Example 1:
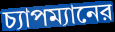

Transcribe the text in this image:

চ্যাপম্যানের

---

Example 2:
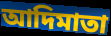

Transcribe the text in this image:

আদিমাতা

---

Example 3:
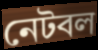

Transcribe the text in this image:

নেটবল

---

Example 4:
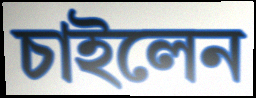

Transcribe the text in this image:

চাইলেন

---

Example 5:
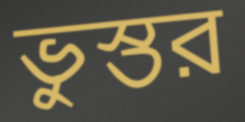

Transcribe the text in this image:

ভুস্তর